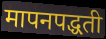
मापनपद्धती